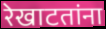
रेखाटतांना